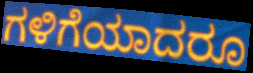
ಗಳಿಗೆಯಾದರೂ